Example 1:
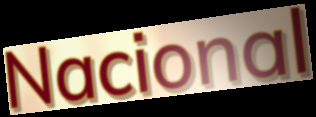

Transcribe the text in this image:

Nacional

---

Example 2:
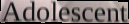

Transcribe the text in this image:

Adolescent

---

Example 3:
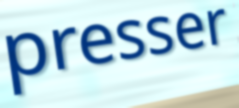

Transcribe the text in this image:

presser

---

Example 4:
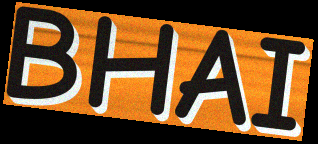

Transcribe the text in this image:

BHAI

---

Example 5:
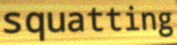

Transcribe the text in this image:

squatting